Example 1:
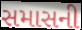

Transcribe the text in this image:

સમાસની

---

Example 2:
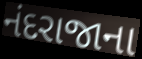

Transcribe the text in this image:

નંદરાજાના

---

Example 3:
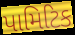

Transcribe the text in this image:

પામિટિક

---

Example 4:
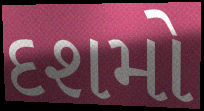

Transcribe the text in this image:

દશમો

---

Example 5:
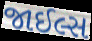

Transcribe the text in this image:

જાઈલ્સ